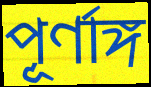
পূৰ্ণাঙ্গ